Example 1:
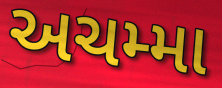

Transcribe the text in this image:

અચમ્મા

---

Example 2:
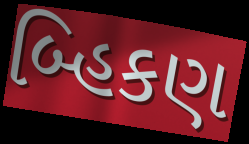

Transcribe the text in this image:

બ્હિકણ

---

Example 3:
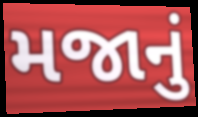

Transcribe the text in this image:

મજાનું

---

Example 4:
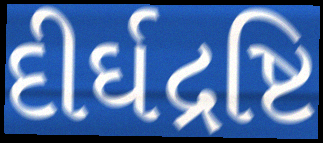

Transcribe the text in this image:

દીર્ઘદ્રષ્ટિ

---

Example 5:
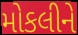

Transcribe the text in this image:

મોકલીને